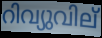
റിവ്യുവില്